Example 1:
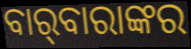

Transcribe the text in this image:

ବାର୍‌ବାରାଙ୍କର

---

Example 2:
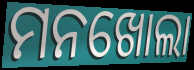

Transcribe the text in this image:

ମନଖୋଲା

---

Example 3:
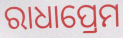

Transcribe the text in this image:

ରାଧାପ୍ରେମ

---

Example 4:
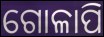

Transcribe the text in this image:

ଗୋଳାପି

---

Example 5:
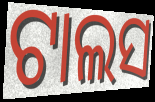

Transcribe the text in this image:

ଟାଲସ